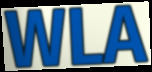
WLA